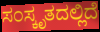
ಸಂಸ್ಕೃತದಲ್ಲಿದೆ